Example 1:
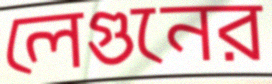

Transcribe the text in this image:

লেগুনের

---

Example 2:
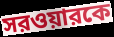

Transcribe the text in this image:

সরওয়ারকে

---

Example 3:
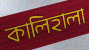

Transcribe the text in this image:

কালিহালা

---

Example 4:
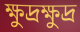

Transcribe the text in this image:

ক্ষুদ্রক্ষুদ্র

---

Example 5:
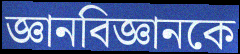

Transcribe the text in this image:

জ্ঞানবিজ্ঞানকে